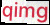
qimg